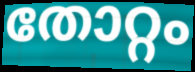
തോറ്റം